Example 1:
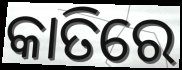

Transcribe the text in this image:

କାତିରେ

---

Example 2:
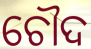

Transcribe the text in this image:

ଚୌଦ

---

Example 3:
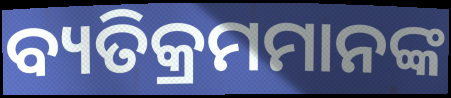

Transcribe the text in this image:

ବ୍ୟତିକ୍ରମମାନଙ୍କ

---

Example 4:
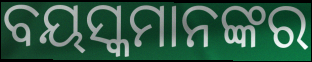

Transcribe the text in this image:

ବୟସ୍କମାନଙ୍କର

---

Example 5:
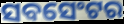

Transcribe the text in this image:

ସବସେଂଟର